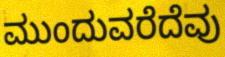
ಮುಂದುವರೆದೆವು